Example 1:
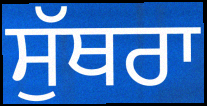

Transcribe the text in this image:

ਸੁੱਥਰਾ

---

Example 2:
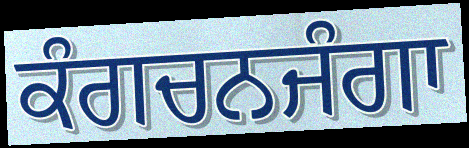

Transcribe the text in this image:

ਕੰਗਚਨਜੰਗਾ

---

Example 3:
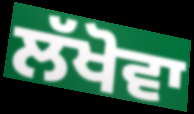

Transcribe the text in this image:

ਲੱਖੋਵਾ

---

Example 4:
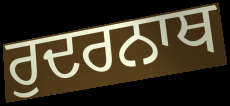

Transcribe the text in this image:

ਰੁਦਰਨਾਥ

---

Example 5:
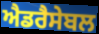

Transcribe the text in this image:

ਐਡਰੈਸੇਬਲ